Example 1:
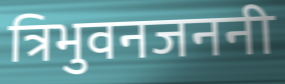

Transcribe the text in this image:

त्रिभुवनजननी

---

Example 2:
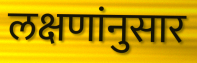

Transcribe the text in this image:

लक्षणांनुसार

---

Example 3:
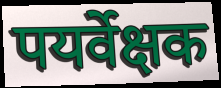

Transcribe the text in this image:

पयर्वेक्षक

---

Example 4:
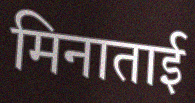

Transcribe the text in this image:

मिनाताई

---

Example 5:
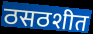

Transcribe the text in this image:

ठसठशीत